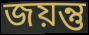
জয়ন্তু